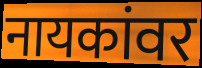
नायकांवर